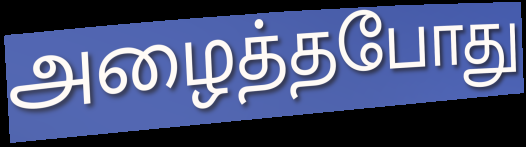
அழைத்தபோது